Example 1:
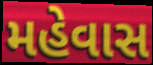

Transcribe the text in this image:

મહેવાસ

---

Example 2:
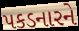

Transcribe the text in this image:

પકડનારને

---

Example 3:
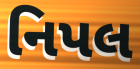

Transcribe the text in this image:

નિપલ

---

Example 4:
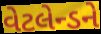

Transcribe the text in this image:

વેટલેન્ડને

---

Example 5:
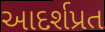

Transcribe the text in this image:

આદર્શપ્રત